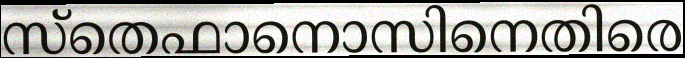
സ്തെഫാനൊസിനെതിരെ